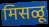
मिसळू